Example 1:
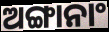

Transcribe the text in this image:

ଅଙ୍ଗାନାଂ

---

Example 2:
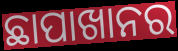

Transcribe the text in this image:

ଛାପାଖାନର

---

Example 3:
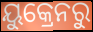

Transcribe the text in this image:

ୟୁକ୍ରେନରୁ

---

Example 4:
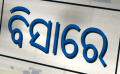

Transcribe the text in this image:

ବିସାରେ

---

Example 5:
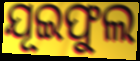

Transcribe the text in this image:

ଯୂଇଫୁଲ